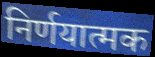
निर्णयात्मक